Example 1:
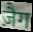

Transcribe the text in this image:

ज़ैग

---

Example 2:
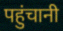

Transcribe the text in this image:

पहुंचानी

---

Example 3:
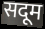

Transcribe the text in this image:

सदूम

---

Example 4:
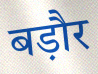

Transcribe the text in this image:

बड़ौर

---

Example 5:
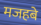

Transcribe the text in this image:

मजहबे